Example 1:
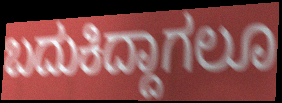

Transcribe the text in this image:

ಬದುಕಿದ್ದಾಗಲೂ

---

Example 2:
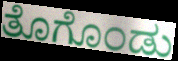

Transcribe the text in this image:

ತೊಗೊಂಡು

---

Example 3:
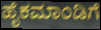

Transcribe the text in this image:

ಹೈಕಮಾಂಡಿಗೆ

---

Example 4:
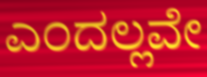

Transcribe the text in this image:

ಎಂದಲ್ಲವೇ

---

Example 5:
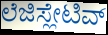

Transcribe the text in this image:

ಲೆಜಿಸ್ಲೇಟಿವ್